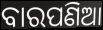
ବାରପଣିଆ